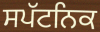
ਸਪੱਟਨਿਕ